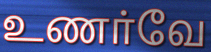
உணர்வே